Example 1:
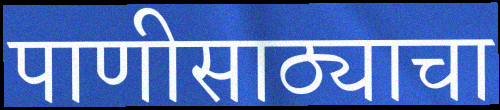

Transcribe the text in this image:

पाणीसाठ्याचा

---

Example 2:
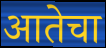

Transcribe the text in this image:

आतेचा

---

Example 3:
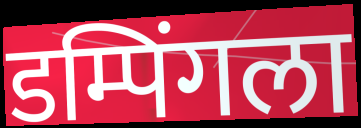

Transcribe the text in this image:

डम्पिंगला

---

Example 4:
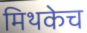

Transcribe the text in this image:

मिथकेच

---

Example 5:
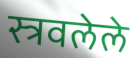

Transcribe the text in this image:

स्त्रवलेले